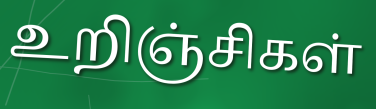
உறிஞ்சிகள்